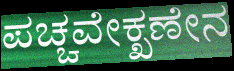
ಪಚ್ಚವೇಕ್ಖಣೇನ